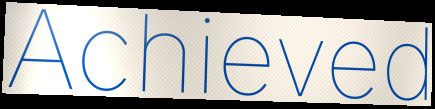
Achieved